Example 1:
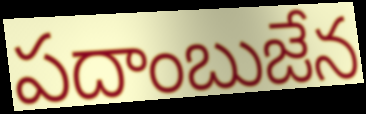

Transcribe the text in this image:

పదాంబుజేన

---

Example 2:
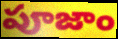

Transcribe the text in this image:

పూజాం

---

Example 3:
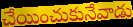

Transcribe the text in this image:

చేయించుకునేవాడు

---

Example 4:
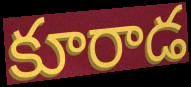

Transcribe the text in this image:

కూరాడ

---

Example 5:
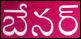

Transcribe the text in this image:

బేనర్